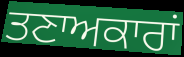
ਤਣਾਅਕਾਰਾਂ